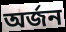
অর্জন